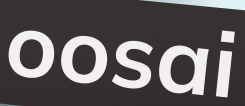
oosai